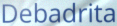
Debadrita